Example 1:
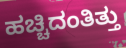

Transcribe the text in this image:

ಹಚ್ಚಿದಂತಿತ್ತು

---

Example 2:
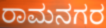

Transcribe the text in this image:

ರಾಮನಗರ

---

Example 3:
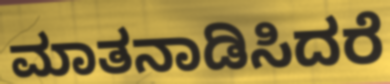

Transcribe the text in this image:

ಮಾತನಾಡಿಸಿದರೆ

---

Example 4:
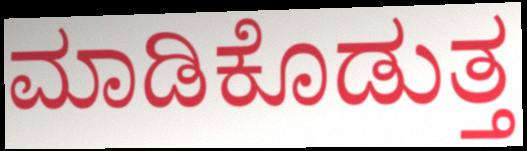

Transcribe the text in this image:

ಮಾಡಿಕೊಡುತ್ತ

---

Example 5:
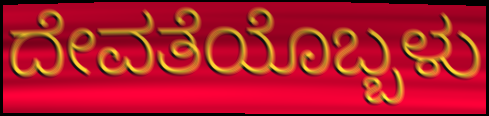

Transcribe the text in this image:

ದೇವತೆಯೊಬ್ಬಳು